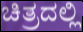
ಚಿತ್ರದಲ್ಲಿ